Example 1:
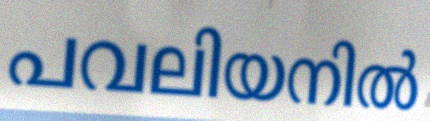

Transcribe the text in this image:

പവലിയനിൽ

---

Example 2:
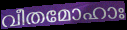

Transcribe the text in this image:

വീതമോഹാഃ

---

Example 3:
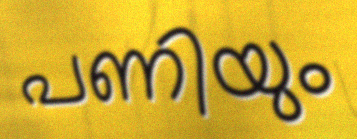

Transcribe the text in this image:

പണിയും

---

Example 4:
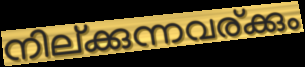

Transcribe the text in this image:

നില്ക്കുന്നവര്ക്കും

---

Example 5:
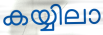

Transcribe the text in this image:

കയ്യിലാ